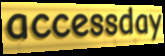
accessday